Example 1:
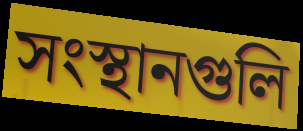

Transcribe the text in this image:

সংস্থানগুলি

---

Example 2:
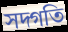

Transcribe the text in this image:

সদ্গতি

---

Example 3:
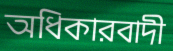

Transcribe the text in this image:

অধিকারবাদী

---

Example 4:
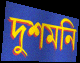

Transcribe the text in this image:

দুশমনি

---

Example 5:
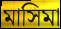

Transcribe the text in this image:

মাসিমা